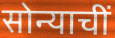
सोन्याचीं